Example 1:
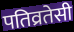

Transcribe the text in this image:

पतिव्रतेसी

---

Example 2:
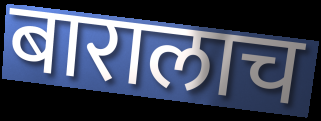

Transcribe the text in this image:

बारालाच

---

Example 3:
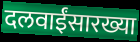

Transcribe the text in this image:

दलवाईंसारख्या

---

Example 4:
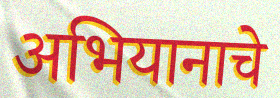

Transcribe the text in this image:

अभियानाचे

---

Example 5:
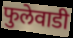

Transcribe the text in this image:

फुलेवाडी